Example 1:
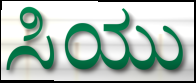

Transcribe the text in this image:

ಸಿಯು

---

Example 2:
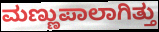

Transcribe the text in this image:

ಮಣ್ಣುಪಾಲಾಗಿತ್ತು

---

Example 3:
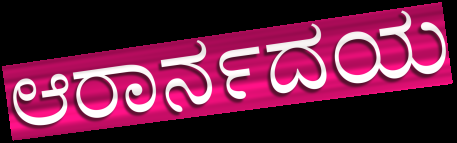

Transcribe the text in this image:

ಆರಾರ್ನದಯ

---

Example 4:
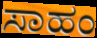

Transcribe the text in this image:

ಸಾಹಂ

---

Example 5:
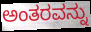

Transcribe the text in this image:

ಅಂತರವನ್ನು